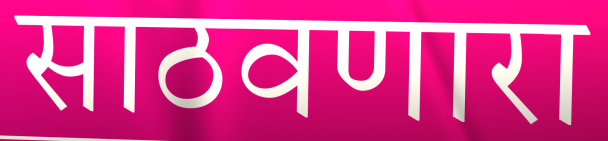
साठवणारा